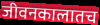
जीवनकालातच